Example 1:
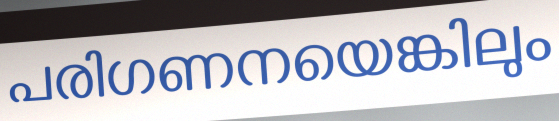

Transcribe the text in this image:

പരിഗണനയെങ്കിലും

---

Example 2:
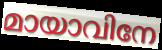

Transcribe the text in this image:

മായാവിനേ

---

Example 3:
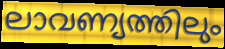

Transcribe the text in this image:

ലാവണ്യത്തിലും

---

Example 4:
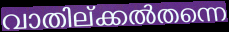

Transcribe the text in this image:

വാതില്ക്കൽതന്നെ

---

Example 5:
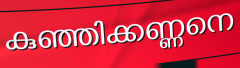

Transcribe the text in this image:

കുഞ്ഞിക്കണ്ണനെ